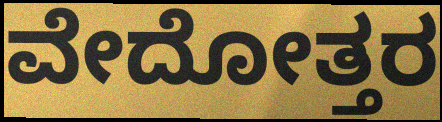
ವೇದೋತ್ತರ